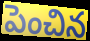
పెంచిన